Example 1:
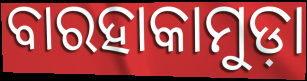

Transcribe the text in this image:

ବାରହାକାମୁଡ଼ା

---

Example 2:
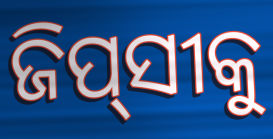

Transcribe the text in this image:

ଜିପ୍‌ସୀକୁ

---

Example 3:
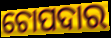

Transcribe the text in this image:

ଚୋପଦାର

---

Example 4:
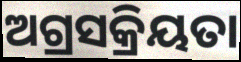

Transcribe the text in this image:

ଅଗ୍ରସକ୍ରିୟତା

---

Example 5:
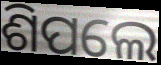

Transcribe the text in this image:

ଶିପଲେ